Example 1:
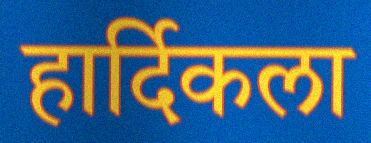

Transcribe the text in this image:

हार्दिकला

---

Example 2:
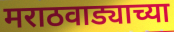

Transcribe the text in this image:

मराठवाड्याच्या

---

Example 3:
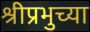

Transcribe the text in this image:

श्रीप्रभुच्या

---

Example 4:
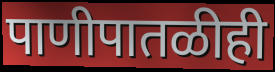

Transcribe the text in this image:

पाणीपातळीही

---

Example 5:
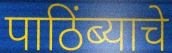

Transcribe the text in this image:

पाठिंब्याचे